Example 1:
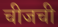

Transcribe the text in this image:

चीजची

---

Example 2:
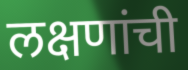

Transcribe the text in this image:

लक्षणांची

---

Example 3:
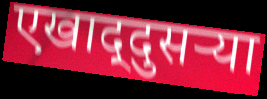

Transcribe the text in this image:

एखाद्‌दुसऱ्या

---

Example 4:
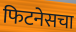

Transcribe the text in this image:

फिटनेसचा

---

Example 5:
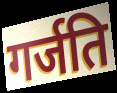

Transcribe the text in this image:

गर्जति